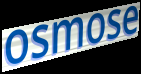
osmose